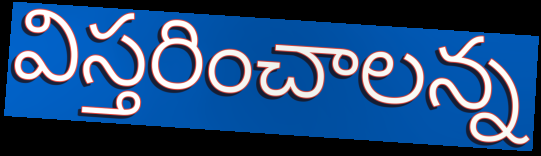
విస్తరించాలన్న